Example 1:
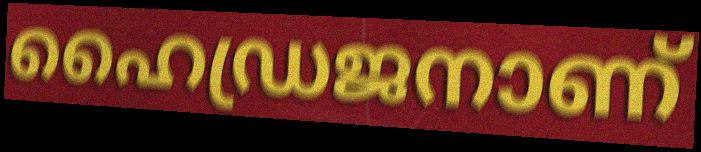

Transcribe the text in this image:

ഹൈഡ്രജനാണ്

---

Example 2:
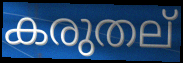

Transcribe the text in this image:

കരുതല്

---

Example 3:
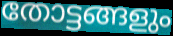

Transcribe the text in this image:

തോട്ടങ്ങളും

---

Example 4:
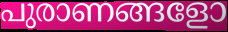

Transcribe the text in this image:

പുരാണങ്ങളോ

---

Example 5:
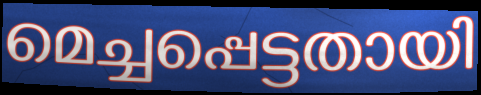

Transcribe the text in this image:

മെച്ചപ്പെട്ടതായി